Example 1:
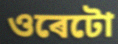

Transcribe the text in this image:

ওৰেটো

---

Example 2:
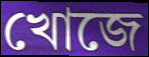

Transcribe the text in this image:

খোজে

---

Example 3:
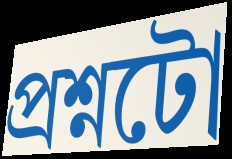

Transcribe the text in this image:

প্ৰশ্নটো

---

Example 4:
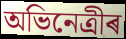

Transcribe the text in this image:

অভিনেত্ৰীৰ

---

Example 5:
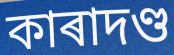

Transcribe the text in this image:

কাৰাদণ্ড